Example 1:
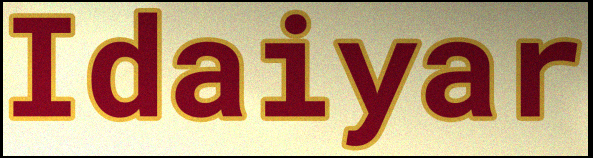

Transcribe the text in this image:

Idaiyar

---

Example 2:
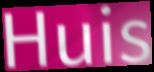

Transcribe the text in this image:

Huis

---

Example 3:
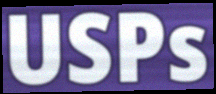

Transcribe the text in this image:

USPs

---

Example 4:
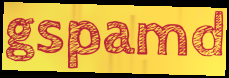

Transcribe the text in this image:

gspamd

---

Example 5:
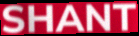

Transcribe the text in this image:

SHANT